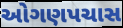
ઓગણપચાસ